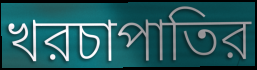
খরচাপাতির